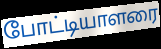
போட்டியாளரை